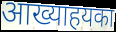
आख्याहयका